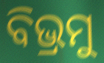
ବିଭ୍ରମୁ